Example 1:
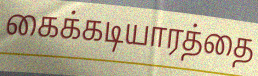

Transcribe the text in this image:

கைக்கடியாரத்தை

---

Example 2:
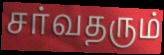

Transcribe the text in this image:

சர்வதரும்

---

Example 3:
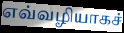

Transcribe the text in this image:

எவ்வழியாகச்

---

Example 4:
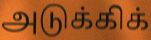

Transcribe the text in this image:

அடுக்கிக்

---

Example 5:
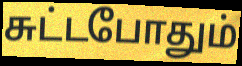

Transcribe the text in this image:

சுட்டபோதும்